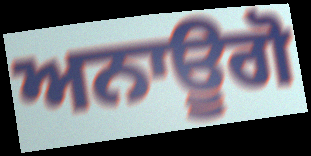
ਅਨਾਊਗੋ